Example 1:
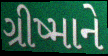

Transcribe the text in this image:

ગ્રીષ્માને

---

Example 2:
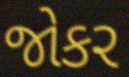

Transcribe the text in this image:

જોકર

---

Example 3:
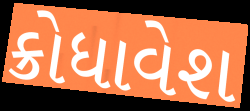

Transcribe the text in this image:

ક્રોધાવેશ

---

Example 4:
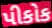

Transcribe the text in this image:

પીકોક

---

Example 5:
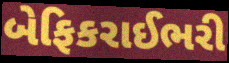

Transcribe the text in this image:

બેફિકરાઈભરી